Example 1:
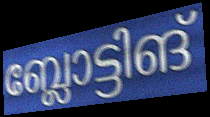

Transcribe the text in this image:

ബ്ലോട്ടിങ്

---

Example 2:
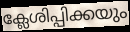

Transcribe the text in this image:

ക്ലേശിപ്പിക്കയും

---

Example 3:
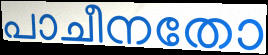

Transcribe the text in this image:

പാചീനതോ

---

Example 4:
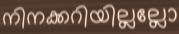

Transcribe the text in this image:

നിനക്കറിയില്ലല്ലോ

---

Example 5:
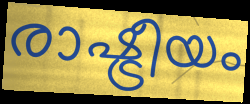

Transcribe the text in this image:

രാഷ്ട്രീയം